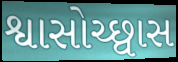
શ્વાસોચ્છ્વાસ